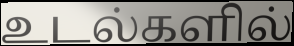
உடல்களில்